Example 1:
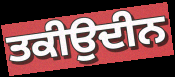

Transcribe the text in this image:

ਤਕੀਉਦੀਨ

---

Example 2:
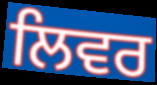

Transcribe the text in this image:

ਲਿਵਰ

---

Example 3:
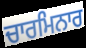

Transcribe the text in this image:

ਚਾਰਮਿਨਾਰ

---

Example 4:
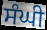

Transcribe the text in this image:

ਸੰਘੀ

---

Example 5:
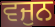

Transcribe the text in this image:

ਵਜੁਨ